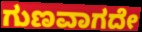
ಗುಣವಾಗದೇ